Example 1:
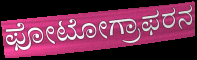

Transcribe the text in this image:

ಫೋಟೋಗ್ರಾಫರನ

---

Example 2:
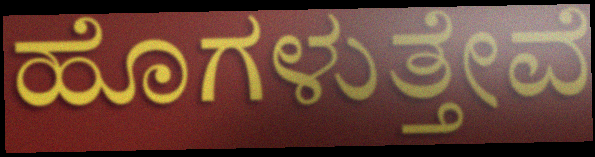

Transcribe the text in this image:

ಹೊಗಳುತ್ತೇವೆ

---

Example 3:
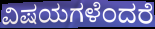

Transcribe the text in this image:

ವಿಷಯಗಳೆಂದರೆ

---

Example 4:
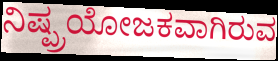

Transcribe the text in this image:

ನಿಷ್ಪ್ರಯೋಜಕವಾಗಿರುವ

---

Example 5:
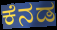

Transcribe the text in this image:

ಕೆನಡ